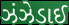
ઝંઝેડાઈ